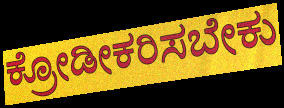
ಕ್ರೋಡೀಕರಿಸಬೇಕು